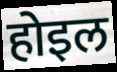
होइल